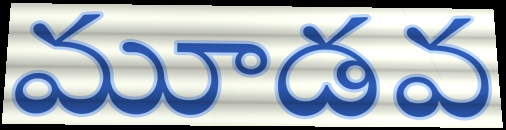
మూడవ